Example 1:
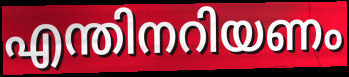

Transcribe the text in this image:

എന്തിനറിയണം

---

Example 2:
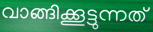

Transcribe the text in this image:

വാങ്ങിക്കൂട്ടുന്നത്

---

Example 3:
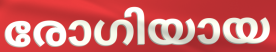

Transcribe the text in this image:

രോഗിയായ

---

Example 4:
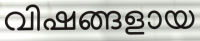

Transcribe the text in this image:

വിഷങ്ങളായ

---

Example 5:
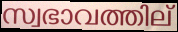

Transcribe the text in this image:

സ്വഭാവത്തില്